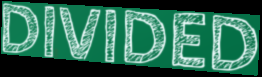
DIVIDED